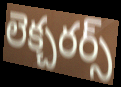
లెక్చరర్స్